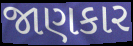
જાણકાર